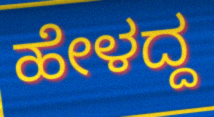
ಹೇಳದ್ದ